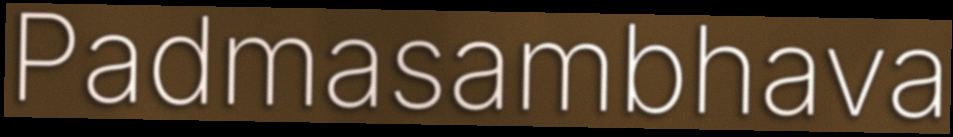
Padmasambhava